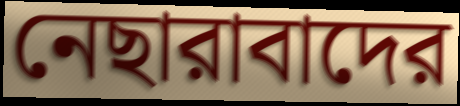
নেছারাবাদের